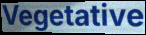
Vegetative